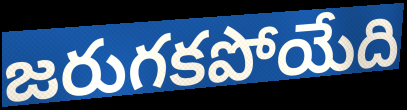
జరుగకపోయేది